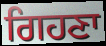
ਗਿਹਣਾ